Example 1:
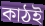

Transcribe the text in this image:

কাঠই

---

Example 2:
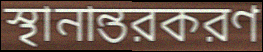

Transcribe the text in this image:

স্থানান্তরকরণ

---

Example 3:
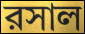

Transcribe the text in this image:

রসাল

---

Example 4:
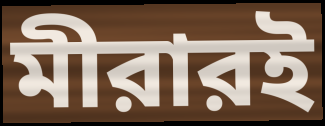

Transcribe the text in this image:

মীরারই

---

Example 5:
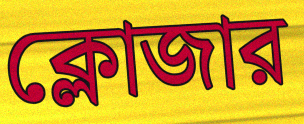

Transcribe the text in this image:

ক্লোজার